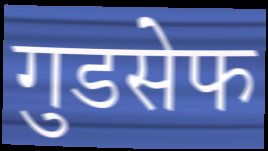
गुडसेफ